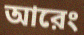
আরেং